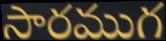
సారముగ